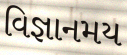
વિજ્ઞાનમય